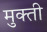
मुक्ती